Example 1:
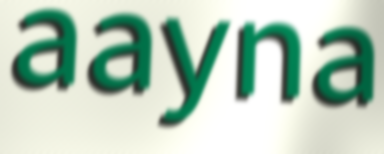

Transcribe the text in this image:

aayna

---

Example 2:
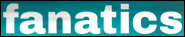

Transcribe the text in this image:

fanatics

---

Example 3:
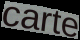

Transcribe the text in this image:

carte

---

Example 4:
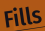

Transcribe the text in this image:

Fills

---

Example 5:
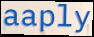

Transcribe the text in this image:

aaply